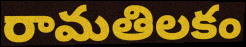
రామతిలకం